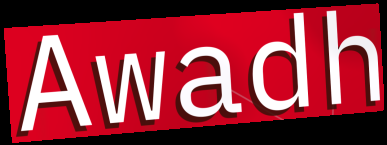
Awadh